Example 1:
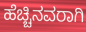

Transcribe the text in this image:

ಹೆಚ್ಚಿನವರಾಗಿ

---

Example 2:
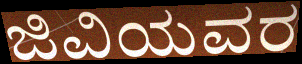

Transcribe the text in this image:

ಜಿವಿಯವರ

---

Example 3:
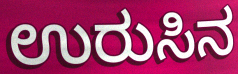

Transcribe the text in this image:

ಉರುಸಿನ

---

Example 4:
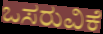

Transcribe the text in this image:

ಒಸರುವಿಕೆ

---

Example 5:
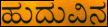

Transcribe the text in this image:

ಹುದುವಿನ